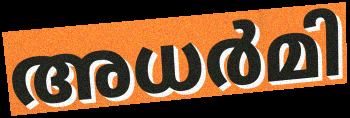
അധർമി